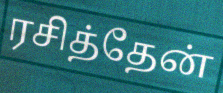
ரசித்தேன்